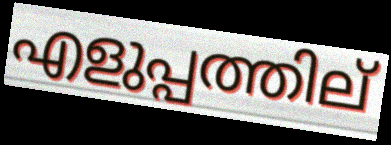
എളുപ്പത്തില്